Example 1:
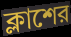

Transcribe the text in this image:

ক্লাশের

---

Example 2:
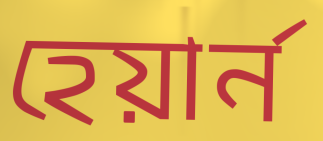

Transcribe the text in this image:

হেয়ার্ন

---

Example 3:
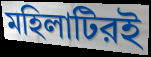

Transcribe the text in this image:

মহিলাটিরই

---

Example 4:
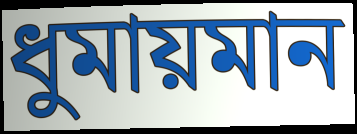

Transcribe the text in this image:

ধুমায়মান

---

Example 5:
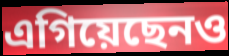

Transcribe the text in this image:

এগিয়েছেনও